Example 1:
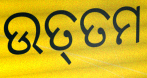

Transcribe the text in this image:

ଉତ୍‌ତମ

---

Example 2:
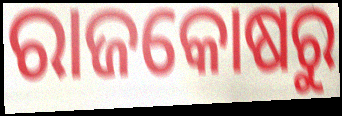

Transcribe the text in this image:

ରାଜକୋଷରୁ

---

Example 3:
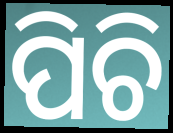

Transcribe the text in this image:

ପିଚି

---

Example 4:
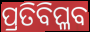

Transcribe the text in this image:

ପ୍ରତିବିପ୍ଳବ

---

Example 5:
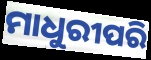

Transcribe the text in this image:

ମାଧୁରୀପରି